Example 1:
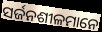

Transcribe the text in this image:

ସର୍ଜନଶୀଳମାନେ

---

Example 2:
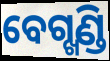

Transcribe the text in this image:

ବେଗ୍ଖଣ୍ଡି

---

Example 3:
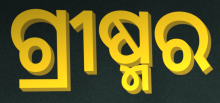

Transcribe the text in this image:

ଗ୍ରୀଷ୍ମର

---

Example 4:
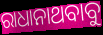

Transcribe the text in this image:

ରାଧାନାଥବାବୁ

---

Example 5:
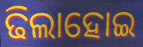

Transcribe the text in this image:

ଢିଲାହୋଇ